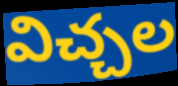
విచ్చల